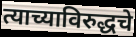
त्याच्याविरुद्धचे